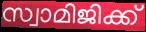
സ്വാമിജിക്ക്